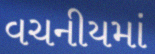
વચનીયમાં